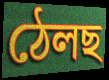
ঠেলছ